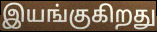
இயங்குகிறது